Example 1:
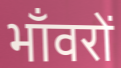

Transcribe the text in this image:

भाँवरों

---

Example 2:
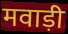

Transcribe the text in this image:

मवाड़ी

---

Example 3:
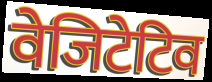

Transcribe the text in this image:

वेजिटेटिव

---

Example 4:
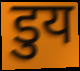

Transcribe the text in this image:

डुय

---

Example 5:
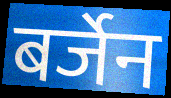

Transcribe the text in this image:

बर्जेन